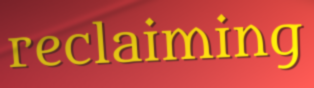
reclaiming